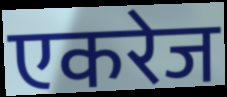
एकरेज